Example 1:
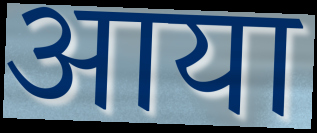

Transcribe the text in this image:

आया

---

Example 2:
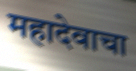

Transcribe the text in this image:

महादेवाचा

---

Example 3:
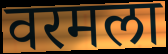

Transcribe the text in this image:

वरमला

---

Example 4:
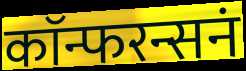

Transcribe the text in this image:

कॉन्फरन्सनं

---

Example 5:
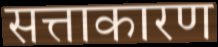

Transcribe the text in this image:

सत्ताकारण